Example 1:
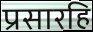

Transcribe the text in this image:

प्रसारहि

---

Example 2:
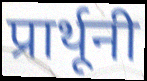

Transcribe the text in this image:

प्रार्थूनी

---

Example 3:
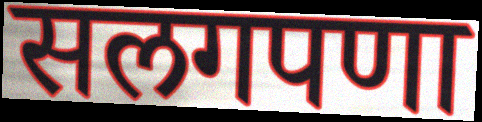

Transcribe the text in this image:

सलगपणा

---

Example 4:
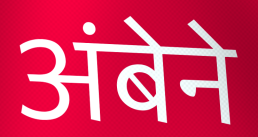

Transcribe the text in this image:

अंबेने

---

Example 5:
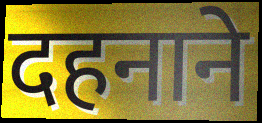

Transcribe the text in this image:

दहनाने